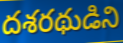
దశరథుడిని